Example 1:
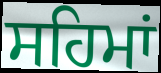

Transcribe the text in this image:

ਸਹਿਮਾਂ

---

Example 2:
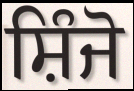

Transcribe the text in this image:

ਸ਼ਿੰਜੋ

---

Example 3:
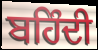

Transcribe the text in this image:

ਬਹਿੰਦੀ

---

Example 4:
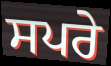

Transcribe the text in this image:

ਸਪਰੇ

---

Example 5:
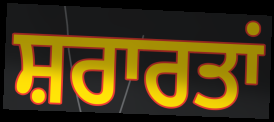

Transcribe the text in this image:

ਸ਼ਰਾਰਤਾਂ